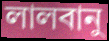
লালবানু